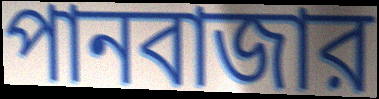
পানবাজার